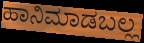
ಹಾನಿಮಾಡಬಲ್ಲ